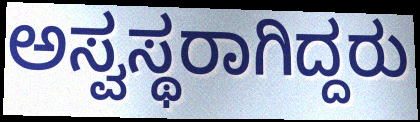
ಅಸ್ವಸ್ಥರಾಗಿದ್ದರು